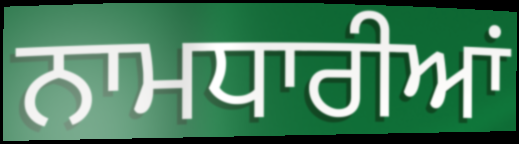
ਨਾਮਧਾਰੀਆਂ